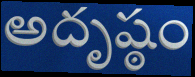
అదృష్ఠం